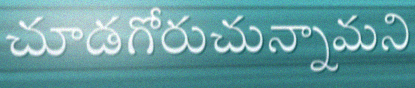
చూడగోరుచున్నామని